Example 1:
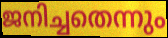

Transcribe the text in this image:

ജനിച്ചതെന്നും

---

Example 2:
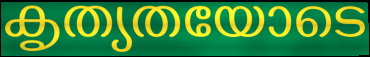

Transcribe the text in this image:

കൃത്യതയോടെ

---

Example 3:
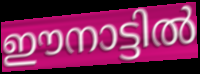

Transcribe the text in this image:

ഈനാട്ടിൽ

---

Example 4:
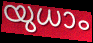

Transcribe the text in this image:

യുധാം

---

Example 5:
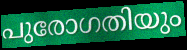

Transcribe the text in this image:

പുരോഗതിയും